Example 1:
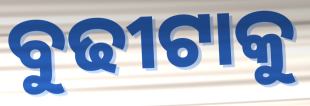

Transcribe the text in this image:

ବୁଢୀଟାକୁ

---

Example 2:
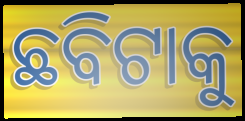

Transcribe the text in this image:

ଛବିଟାକୁ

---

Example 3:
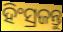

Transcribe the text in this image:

ହିଂସ୍ରଜନ୍ତୁ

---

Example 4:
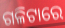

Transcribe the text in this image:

ଗଳିଟାରେ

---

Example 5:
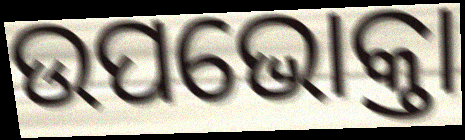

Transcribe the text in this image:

ଉପଭୋକ୍ତା